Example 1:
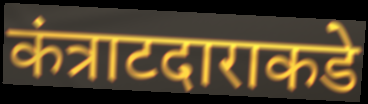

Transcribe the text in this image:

कंत्राटदाराकडे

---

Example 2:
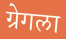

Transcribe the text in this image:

ग्रेगला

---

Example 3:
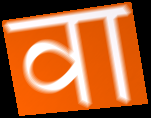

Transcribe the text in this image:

वा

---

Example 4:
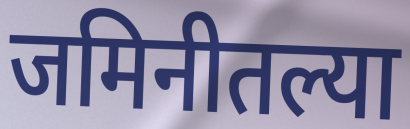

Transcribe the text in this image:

जमिनीतल्या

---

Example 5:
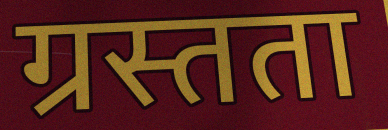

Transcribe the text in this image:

ग्रस्तता